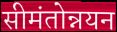
सीमंतोन्नयन